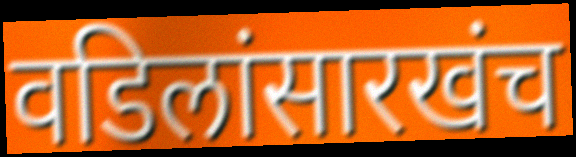
वडिलांसारखंच